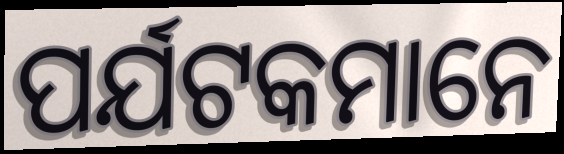
ପର୍ଯଟକମାନେ